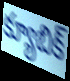
క్యూబిక్